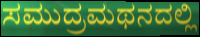
ಸಮುದ್ರಮಥನದಲ್ಲಿ